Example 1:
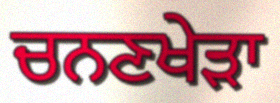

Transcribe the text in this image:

ਚਨਣਖੇੜਾ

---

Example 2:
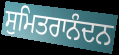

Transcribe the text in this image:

ਸੁਮਿਤਰਾਨੰਦਨ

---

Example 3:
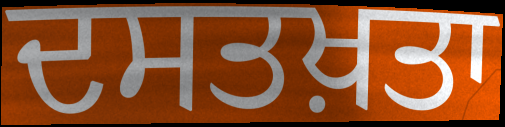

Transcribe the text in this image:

ਦਸਤਖ਼ਤਾ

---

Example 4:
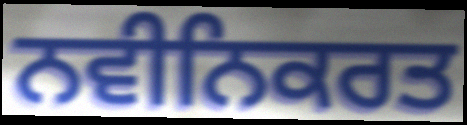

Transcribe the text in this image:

ਨਵੀਨਿਕਰਤ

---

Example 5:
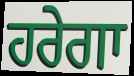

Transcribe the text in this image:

ਹਰੇਗਾ